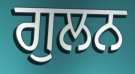
ਗੁਲਨ